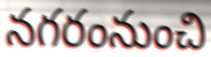
నగరంనుంచి